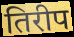
तिरीप